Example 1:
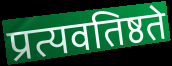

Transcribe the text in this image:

प्रत्यवतिष्ठते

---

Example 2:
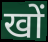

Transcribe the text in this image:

खों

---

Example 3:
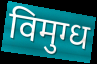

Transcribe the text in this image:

विमुग्ध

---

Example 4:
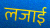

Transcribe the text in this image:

लजाई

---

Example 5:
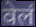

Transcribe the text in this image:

वेलं